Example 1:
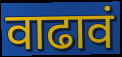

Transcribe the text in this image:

वाढावं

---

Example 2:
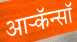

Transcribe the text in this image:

आर्‍कॅन्सॉ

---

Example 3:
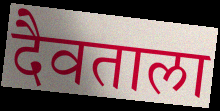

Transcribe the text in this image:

दैवताला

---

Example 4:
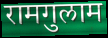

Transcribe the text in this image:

रामगुलाम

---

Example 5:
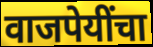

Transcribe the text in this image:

वाजपेयींचा